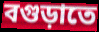
বগুড়াতে